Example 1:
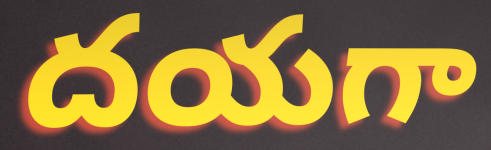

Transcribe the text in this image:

దయగా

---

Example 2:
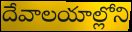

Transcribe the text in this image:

దేవాలయాల్లోని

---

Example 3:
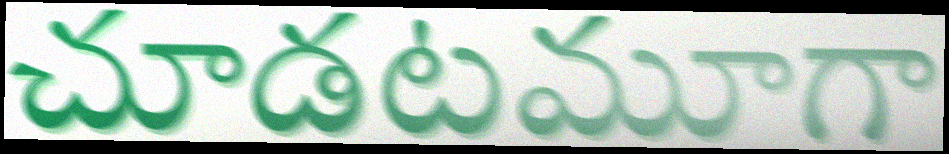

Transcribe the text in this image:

చూడటమూగా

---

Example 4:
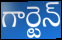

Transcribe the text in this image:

గార్టెన్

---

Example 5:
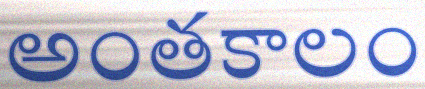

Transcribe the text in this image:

అంతకాలం